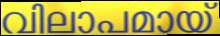
വിലാപമായ്